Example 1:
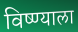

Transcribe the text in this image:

विष्ण्याला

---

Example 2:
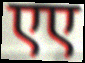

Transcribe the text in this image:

एए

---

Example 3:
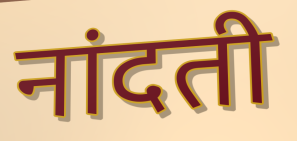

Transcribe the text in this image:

नांदती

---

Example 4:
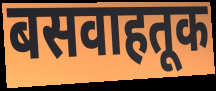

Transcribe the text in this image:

बसवाहतूक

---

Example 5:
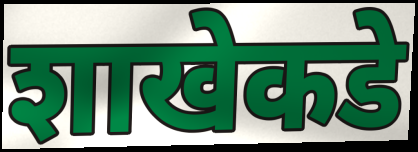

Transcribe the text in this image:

शाखेकडे